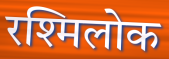
रश्मिलोक